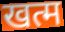
खत्म